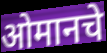
ओमानचे